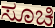
ಸೂಚಿ